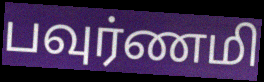
பவுர்ணமி